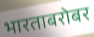
भारताबरोबर